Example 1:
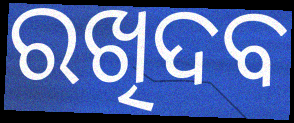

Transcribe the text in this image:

ରଖିଦବ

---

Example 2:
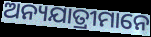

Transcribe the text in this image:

ଅନ୍ୟଯାତ୍ରୀମାନେ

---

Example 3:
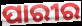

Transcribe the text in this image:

ପାରୀର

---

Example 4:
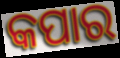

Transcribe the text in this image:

କପାର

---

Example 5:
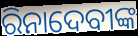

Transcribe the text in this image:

ରିନାଦେବୀଙ୍କ